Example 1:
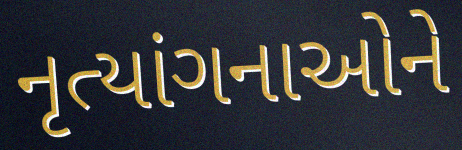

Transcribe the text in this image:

નૃત્યાંગનાઓને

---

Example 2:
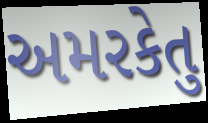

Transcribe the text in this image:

અમરકેતુ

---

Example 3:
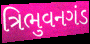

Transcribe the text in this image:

ત્રિભુવનગંડ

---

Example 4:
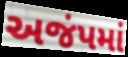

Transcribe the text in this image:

અજંપમાં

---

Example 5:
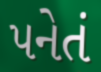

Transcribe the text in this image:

પનેતં